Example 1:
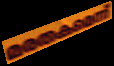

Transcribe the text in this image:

മരതകമെന്ന്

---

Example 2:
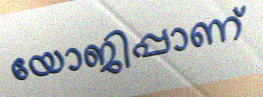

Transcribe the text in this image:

യോജിപ്പാണ്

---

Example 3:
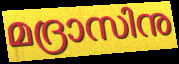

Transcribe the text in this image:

മദ്രാസിനു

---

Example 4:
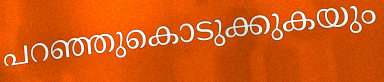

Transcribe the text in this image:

പറഞ്ഞുകൊടുക്കുകയും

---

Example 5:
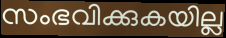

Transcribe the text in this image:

സംഭവിക്കുകയില്ല